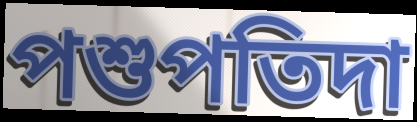
পশুপতিদা